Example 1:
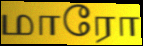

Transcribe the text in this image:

மாரோ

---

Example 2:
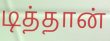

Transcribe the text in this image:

டித்தான்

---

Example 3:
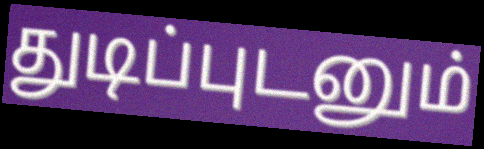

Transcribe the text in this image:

துடிப்புடனும்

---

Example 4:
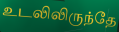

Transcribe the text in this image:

உடலிலிருந்தே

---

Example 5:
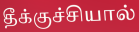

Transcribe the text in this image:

தீக்குச்சியால்